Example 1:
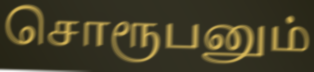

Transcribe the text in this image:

சொரூபனும்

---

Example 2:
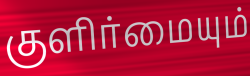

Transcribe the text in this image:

குளிர்மையும்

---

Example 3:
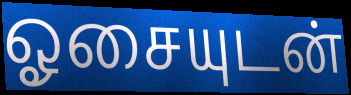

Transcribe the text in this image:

ஓசையுடன்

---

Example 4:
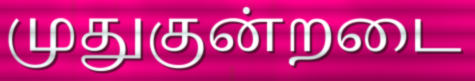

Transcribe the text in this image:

முதுகுன்றடை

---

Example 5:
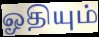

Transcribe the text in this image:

ஓதியும்